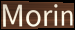
Morin